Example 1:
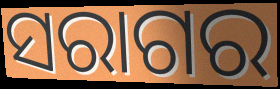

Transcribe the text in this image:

ସରାଗର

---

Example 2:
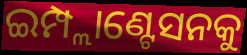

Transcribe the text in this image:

ଇମ୍ପ୍ଲାଣ୍ଟେସନକୁ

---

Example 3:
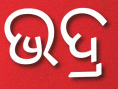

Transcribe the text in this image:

ଭଦ୍ର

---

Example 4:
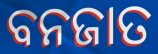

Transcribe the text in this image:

ବନଜାତ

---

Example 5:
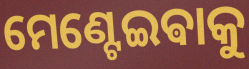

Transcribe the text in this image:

ମେଣ୍ଟେଇଵାକୁ